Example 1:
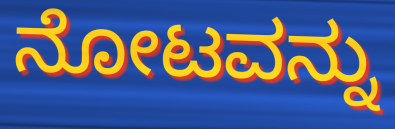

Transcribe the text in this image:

ನೋಟವನ್ನು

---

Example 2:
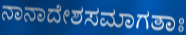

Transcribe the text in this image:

ನಾನಾದೇಶಸಮಾಗತಾಃ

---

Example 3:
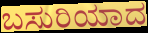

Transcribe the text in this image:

ಬಸುರಿಯಾದ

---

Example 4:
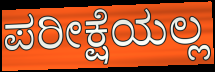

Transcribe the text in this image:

ಪರೀಕ್ಷೆಯಲ್ಲ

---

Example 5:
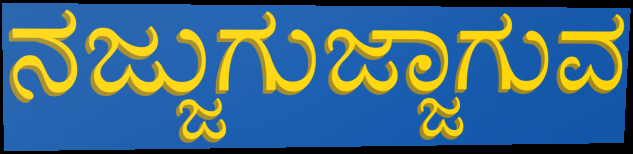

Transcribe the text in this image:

ನಜ್ಜುಗುಜ್ಜಾಗುವ